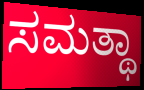
ಸಮತ್ಥಾ